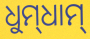
ଧୁମ୍‌ଧାମ୍